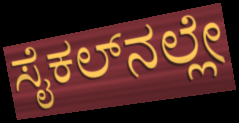
ಸೈಕಲ್‌ನಲ್ಲೇ